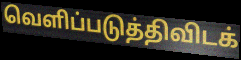
வெளிப்படுத்திவிடக்